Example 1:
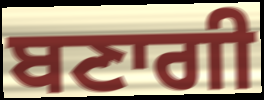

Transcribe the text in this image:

ਬਣਾਗੀ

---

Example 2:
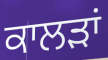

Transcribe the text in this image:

ਕਾਲੜਾਂ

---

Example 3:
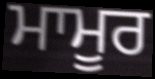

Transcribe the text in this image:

ਮਾਮੂਰ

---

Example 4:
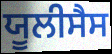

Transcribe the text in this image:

ਯੂਲੀਸੈਸ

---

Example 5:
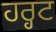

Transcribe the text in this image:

ਹਰ੍ਹਟ